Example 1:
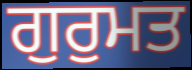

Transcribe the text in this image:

ਗੁਰੁਮਤ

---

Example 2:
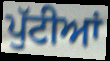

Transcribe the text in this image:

ਪੁੱਟੀਆਂ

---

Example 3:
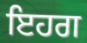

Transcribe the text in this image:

ਇਹਗ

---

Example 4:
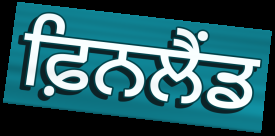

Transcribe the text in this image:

ਫ਼ਿਨਲੈਂਡ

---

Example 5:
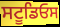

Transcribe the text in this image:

ਸਟੂਡਿਓਸ